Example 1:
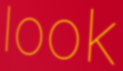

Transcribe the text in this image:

look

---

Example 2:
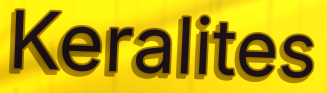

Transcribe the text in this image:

Keralites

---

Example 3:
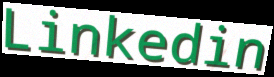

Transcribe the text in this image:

Linkedin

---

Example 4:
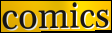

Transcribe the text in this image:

comics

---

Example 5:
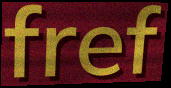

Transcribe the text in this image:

fref